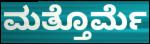
ಮತ್ತೊರ್ಮೆ